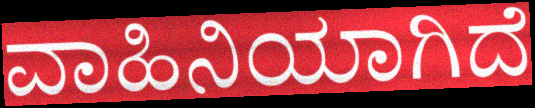
ವಾಹಿನಿಯಾಗಿದೆ